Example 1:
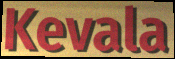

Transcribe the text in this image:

Kevala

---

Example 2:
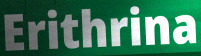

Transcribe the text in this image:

Erithrina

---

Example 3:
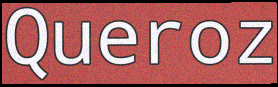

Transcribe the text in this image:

Queroz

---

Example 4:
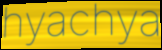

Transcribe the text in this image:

hyachya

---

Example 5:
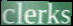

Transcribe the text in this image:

clerks